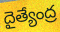
దైత్యేంద్ర